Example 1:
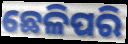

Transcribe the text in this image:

ଛେଳିପରି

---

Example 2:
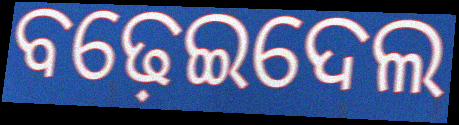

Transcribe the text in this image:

ବଢ଼େଇଦେଲ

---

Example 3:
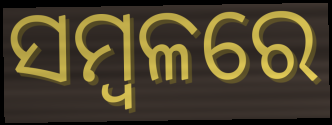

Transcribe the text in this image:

ସମ୍ବଳରେ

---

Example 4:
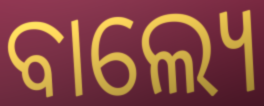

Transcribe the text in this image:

ବାଲ୍ୟେ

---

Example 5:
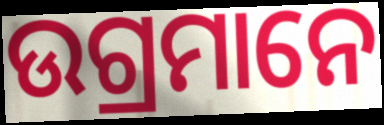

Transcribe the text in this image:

ଉଗ୍ରମାନେ